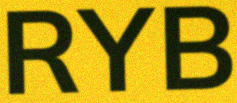
RYB